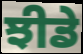
ਝੀਡੇ